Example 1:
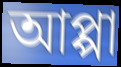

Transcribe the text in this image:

আপ্পা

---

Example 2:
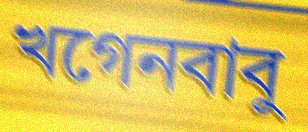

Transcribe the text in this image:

খগেনবাবু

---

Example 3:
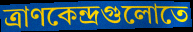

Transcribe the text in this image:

ত্রাণকেন্দ্রগুলোতে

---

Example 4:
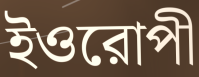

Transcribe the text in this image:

ইওরোপী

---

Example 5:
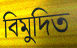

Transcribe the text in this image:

বিমুদিত